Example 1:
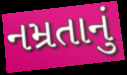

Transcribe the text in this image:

નમ્રતાનું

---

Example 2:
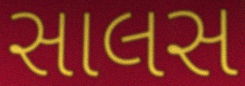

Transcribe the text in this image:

સાલસ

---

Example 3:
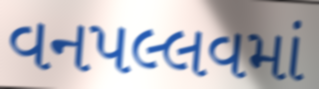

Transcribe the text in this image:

વનપલ્લવમાં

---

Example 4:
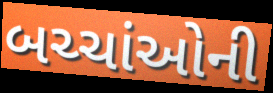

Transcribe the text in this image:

બચ્ચાંઓની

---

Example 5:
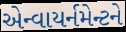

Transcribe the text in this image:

એન્વાયર્નમેન્ટને